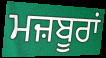
ਮਜ਼ਬੂਰਾਂ